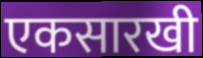
एकसारखी